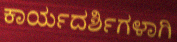
ಕಾರ್ಯದರ್ಶಿಗಳಾಗಿ